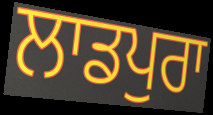
ਲਾਡਪੁਰਾ